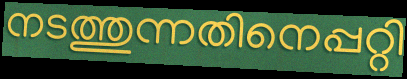
നടത്തുന്നതിനെപ്പറ്റി